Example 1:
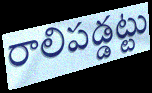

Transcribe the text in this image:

రాలిపడ్డట్టు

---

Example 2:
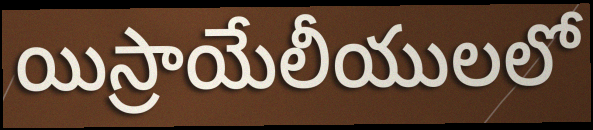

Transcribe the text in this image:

యిస్రాయేలీయులలో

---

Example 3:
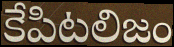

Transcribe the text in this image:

కేపిటలిజం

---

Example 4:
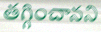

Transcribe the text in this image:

తగ్గించానని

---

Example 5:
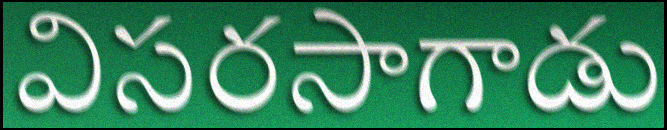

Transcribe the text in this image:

విసరసాగాడు